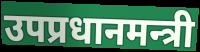
उपप्रधानमन्त्री